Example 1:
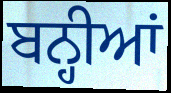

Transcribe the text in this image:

ਬਨ੍ਹੀਆਂ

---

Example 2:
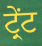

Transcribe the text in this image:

ਟ੍ਰੇਂਟ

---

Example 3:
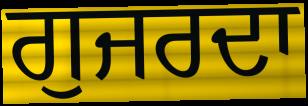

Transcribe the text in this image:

ਗੁਜਰਦਾ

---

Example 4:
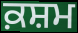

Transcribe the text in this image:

ਕ਼ਸ਼ਮ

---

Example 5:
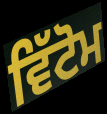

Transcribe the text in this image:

ਵਿੱਟੋਮ